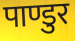
पाण्डुर